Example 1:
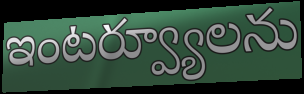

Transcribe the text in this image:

ఇంటర్వ్యూలను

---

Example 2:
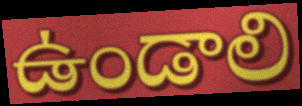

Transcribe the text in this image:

ఉండాలి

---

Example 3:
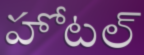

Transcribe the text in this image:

హోటల్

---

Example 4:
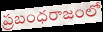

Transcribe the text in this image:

ప్రబంధరాజంలో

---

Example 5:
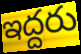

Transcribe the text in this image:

ఇద్దరు